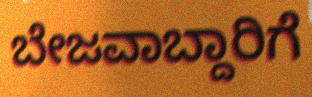
ಬೇಜವಾಬ್ದಾರಿಗೆ